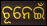
ଚୂନେଇଁ